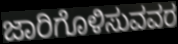
ಜಾರಿಗೊಳಿಸುವವರ